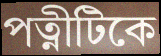
পত্নীটিকে